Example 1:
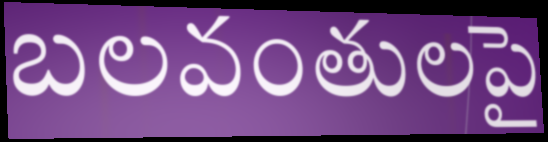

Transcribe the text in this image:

బలవంతులపై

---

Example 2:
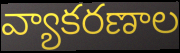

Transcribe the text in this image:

వ్యాకరణాల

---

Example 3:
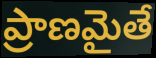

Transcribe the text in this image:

ప్రాణమైతే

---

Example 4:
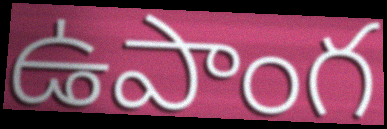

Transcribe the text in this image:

ఉపాంగ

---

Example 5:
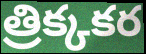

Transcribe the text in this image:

త్రిక్కకర